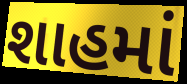
શાહમાં